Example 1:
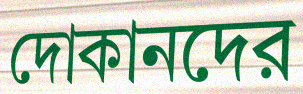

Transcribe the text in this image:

দোকানদের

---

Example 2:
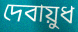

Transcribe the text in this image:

দেবায়ুধ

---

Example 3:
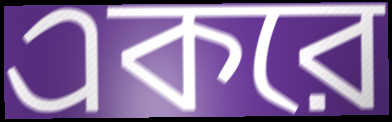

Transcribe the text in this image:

একরে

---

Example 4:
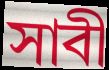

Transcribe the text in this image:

সাবী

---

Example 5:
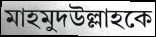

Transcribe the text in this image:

মাহমুদউল্লাহকে